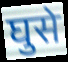
घुसे